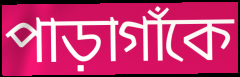
পাড়াগাঁকে